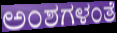
ಅಂಶಗಳಂತೆ